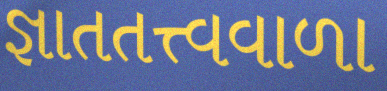
જ્ઞાતતત્ત્વવાળા